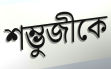
শম্ভুজীকে